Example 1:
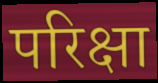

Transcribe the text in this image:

परिक्षा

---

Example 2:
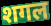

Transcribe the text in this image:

शगल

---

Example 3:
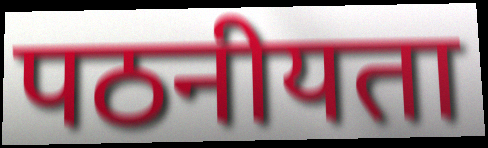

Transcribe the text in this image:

पठनीयता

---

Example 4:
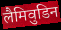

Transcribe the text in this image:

लैमिवुडिन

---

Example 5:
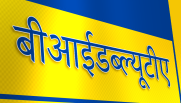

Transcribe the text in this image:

बीआईडब्ल्यूटीए